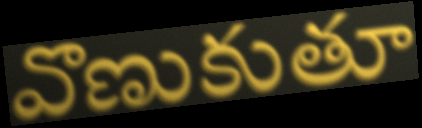
వొణుకుతూ